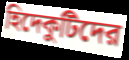
হিদেকুটিদের